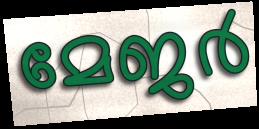
മേജർ